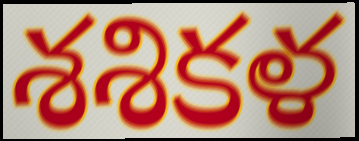
శశికళ